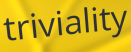
triviality